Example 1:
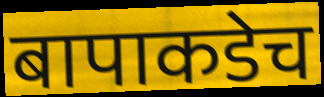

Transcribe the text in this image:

बापाकडेच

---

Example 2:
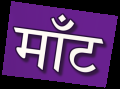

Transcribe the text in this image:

माँट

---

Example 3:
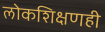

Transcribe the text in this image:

लोकशिक्षणही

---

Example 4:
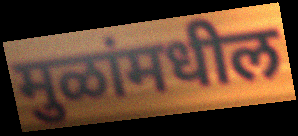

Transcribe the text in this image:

मुळांमधील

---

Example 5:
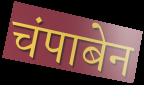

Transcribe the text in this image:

चंपाबेन